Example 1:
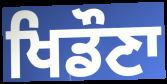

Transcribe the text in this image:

ਖਿਡੌਣਾ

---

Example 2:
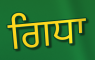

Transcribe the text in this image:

ਗਿਧਾ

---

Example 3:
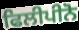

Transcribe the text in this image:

ਫਿਲੀਪੀਨੋ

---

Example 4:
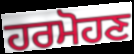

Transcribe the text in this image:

ਹਰਮੋਹਣ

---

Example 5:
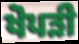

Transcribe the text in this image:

ਖੋਪੜੀ